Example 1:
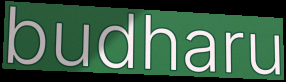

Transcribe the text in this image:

budharu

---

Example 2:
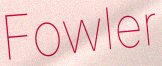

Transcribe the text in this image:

Fowler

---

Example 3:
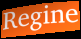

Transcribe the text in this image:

Regine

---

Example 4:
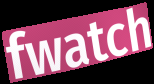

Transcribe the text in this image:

fwatch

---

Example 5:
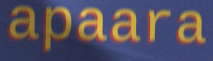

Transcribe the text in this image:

apaara